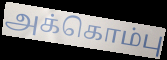
அக்கொம்பு